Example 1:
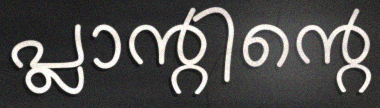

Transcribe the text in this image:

പ്ലാന്റിന്റെ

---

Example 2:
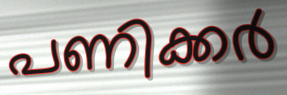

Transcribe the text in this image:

പണിക്കർ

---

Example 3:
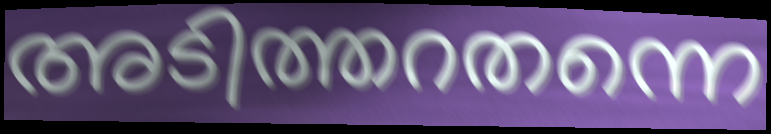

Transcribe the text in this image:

അടിത്തറതന്നെ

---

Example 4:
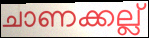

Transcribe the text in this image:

ചാണക്കല്ല്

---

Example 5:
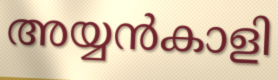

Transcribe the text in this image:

അയ്യൻകാളി